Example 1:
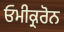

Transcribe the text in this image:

ਓਮੀਕ੍ਰਰੋਨ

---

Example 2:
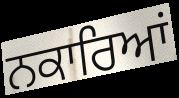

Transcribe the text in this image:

ਨਕਾਰਿਆਂ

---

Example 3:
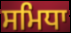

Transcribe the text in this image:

ਸਮਿਧਾ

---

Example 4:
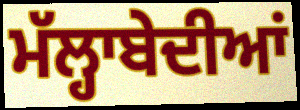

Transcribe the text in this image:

ਮੱਲ੍ਹਾਬੇਦੀਆਂ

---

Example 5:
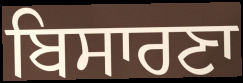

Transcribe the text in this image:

ਬਿਸਾਰਣਾ